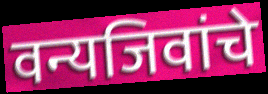
वन्यजिवांचे